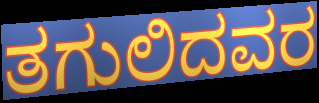
ತಗುಲಿದವರ